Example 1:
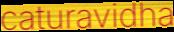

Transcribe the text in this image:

caturavidha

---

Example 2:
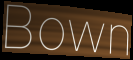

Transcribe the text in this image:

Bown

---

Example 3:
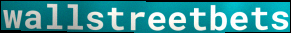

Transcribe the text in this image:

wallstreetbets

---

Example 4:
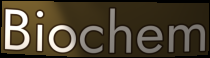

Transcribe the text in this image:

Biochem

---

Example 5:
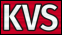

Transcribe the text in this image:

KVS